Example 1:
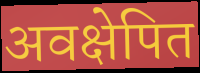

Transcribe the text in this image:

अवक्षेपित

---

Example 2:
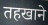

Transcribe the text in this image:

तहखाने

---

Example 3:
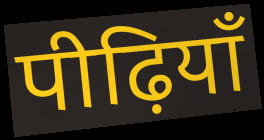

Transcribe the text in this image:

पीढ़ियाँ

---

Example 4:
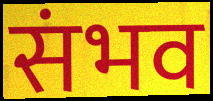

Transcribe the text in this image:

संभव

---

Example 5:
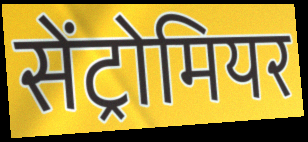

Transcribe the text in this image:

सेंट्रोमियर